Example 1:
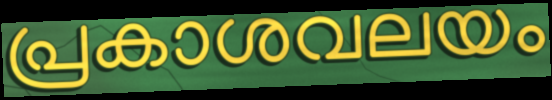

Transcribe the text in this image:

പ്രകാശവലയം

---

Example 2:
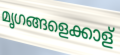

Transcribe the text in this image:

മൃഗങ്ങളെക്കാള്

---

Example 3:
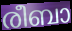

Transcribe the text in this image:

രീബാ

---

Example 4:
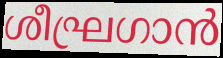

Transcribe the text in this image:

ശീഘ്രഗാൻ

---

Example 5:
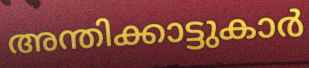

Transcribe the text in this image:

അന്തിക്കാട്ടുകാർ